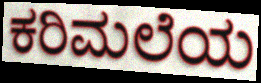
ಕರಿಮಲೆಯ